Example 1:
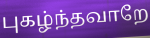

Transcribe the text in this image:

புகழ்ந்தவாறே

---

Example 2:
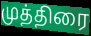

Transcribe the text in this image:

முத்திரை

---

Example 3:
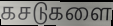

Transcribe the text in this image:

கசடுகளை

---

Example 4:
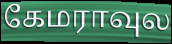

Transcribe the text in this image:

கேமராவுல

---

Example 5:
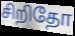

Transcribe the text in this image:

சிறிதோ